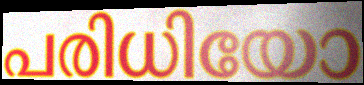
പരിധിയോ